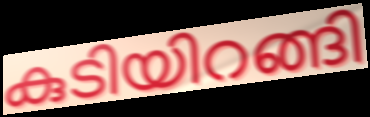
കുടിയിറങ്ങി